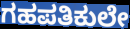
ಗಹಪತಿಕುಲೇ